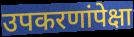
उपकरणांपेक्षा